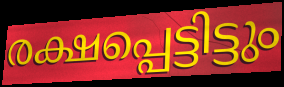
രക്ഷപ്പെട്ടിട്ടും